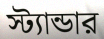
স্ট্যান্ডার